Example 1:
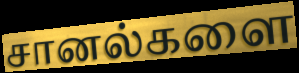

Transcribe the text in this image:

சானல்களை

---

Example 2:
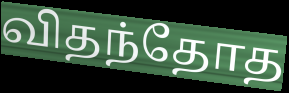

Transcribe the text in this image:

விதந்தோத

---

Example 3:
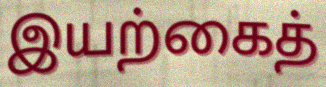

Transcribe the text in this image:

இயற்கைத்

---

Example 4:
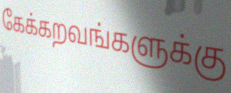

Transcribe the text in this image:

கேக்கறவங்களுக்கு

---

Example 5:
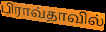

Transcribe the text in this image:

பிராவ்தாவில்